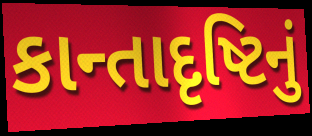
કાન્તાદૃષ્ટિનું